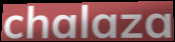
chalaza